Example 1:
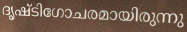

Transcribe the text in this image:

ദൃഷ്ടിഗോചരമായിരുന്നു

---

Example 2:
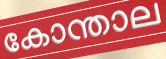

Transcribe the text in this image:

കോന്താല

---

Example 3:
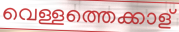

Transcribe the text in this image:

വെള്ളത്തെക്കാള്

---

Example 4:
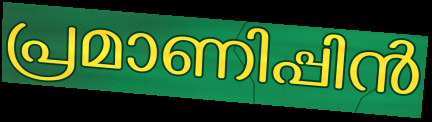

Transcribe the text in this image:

പ്രമാണിപ്പിൻ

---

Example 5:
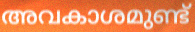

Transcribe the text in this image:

അവകാശമുണ്ട്